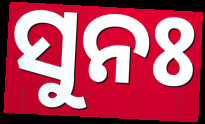
ସୁନଃ